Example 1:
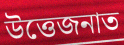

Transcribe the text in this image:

উত্তেজনাত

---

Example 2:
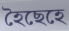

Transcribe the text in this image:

হৈছেহে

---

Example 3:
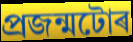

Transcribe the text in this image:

প্ৰজন্মটোৰ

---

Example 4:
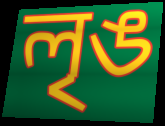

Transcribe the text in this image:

লৃঙ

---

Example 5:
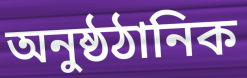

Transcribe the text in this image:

অনুষ্ঠঠানিক